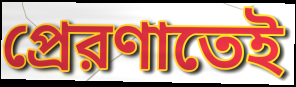
প্রেরণাতেই